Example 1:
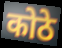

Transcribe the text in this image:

कोठे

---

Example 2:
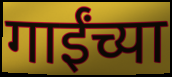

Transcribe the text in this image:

गाईंच्या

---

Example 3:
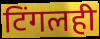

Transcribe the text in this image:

टिंगलही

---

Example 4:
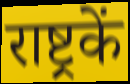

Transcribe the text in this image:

राष्ट्रकें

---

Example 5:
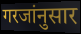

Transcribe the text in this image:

गरजांनुसार